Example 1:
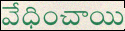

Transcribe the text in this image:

వేధించాయి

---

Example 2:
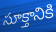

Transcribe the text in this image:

సూక్తానికి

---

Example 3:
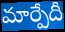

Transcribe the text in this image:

మార్పేదీ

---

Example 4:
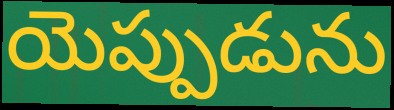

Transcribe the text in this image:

యెప్పుడును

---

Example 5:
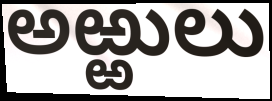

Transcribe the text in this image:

అఱ్ఱులు